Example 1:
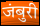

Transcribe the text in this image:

जंबुरी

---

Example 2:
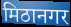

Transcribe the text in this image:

मिठानगर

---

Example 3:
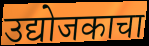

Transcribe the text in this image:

उद्योजकाचा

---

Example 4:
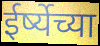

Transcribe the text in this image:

ईर्ष्येच्या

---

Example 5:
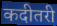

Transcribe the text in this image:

कदीतरी